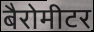
बैरोमीटर